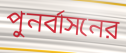
পুনর্বাসনের